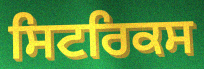
ਸਿਟਰਿਕਸ